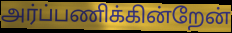
அர்ப்பணிக்கின்றேன்